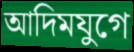
আদিমযুগে